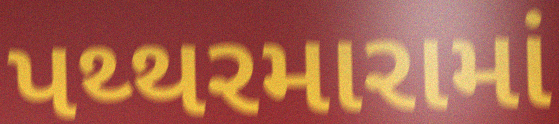
પથ્થરમારામાં